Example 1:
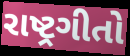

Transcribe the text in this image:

રાષ્ટ્રગીતો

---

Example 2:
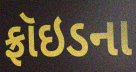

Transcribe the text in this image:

ફ્રૉઇડના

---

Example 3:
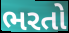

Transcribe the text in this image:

ભરતો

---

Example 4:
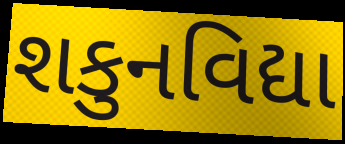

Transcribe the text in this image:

શકુનવિદ્યા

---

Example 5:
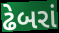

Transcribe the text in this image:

ઢેબરાં